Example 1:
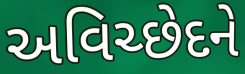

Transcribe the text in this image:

અવિચ્છેદને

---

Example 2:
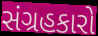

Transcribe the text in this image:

સંગ્રહકારો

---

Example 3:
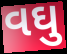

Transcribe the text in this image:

વઘુ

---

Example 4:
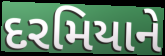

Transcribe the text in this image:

દરમિયાને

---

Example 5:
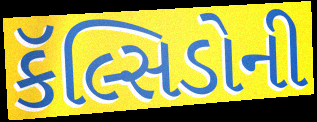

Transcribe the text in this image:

કૅલ્સિડોની